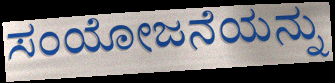
ಸಂಯೋಜನೆಯನ್ನು